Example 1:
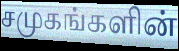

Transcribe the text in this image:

சமுகங்களின்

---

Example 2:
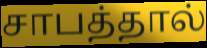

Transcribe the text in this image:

சாபத்தால்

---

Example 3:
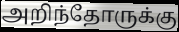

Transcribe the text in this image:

அறிந்தோருக்கு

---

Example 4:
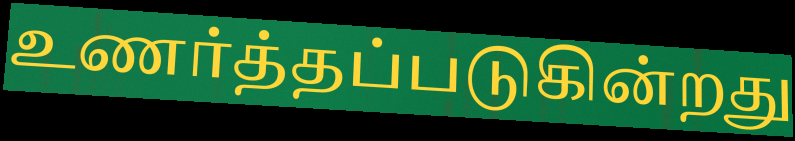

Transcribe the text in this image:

உணர்த்தப்படுகின்றது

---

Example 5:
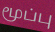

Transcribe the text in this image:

மூப்பு